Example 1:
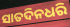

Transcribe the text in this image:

ସାତଦିନଧରି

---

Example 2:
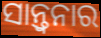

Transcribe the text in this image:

ସାନ୍ତ୍ୱନାର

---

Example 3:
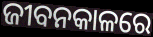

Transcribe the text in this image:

ଜୀବନକାଳରେ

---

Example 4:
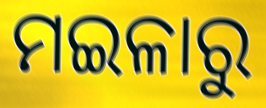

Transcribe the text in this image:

ମଇଳାରୁ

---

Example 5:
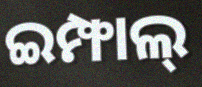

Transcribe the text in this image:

ଇମ୍ଫାଲ୍